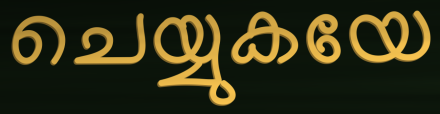
ചെയ്യുകയേ